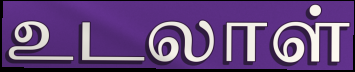
உடலாள்